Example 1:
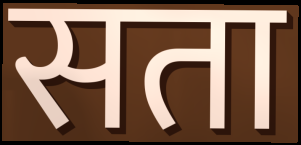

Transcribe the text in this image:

सता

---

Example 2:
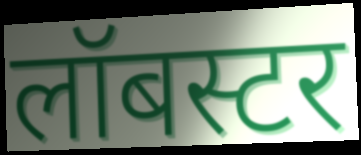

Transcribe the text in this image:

लॉबस्टर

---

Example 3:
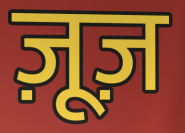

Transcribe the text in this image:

ज़ूज़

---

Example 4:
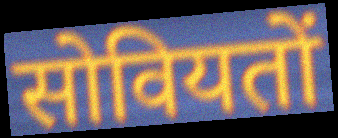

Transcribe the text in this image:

सोवियतों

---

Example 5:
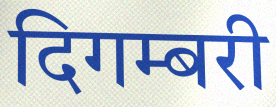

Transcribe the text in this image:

दिगम्बरी